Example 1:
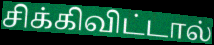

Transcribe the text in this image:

சிக்கிவிட்டால்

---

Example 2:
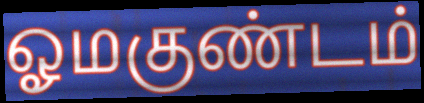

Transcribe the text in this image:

ஓமகுண்டம்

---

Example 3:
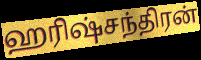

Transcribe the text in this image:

ஹரிஷ்சந்திரன்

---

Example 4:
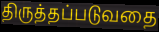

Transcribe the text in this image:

திருத்தப்படுவதை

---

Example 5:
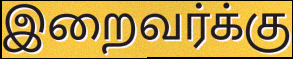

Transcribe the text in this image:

இறைவர்க்கு